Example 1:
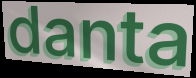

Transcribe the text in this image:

danta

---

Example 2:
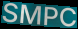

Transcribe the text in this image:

SMPC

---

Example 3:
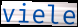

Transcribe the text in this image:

viele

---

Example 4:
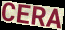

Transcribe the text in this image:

CERA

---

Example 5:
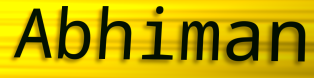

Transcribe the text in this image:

Abhiman